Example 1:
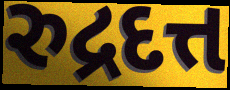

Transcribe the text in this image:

રુદ્રદત્ત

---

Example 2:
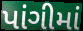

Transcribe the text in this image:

પાંગીમાં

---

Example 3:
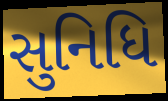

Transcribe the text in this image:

સુનિધિ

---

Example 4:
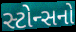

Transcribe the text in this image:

સ્ટોન્સનો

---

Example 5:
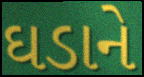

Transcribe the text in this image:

ઘડાને